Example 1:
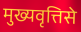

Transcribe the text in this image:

मुख्यवृत्तिसे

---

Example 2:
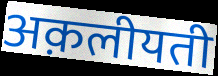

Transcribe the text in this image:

अक़लीयती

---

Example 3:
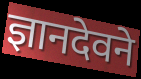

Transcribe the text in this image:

ज्ञानदेवने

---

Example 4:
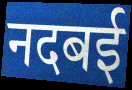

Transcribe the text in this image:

नदबई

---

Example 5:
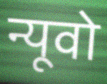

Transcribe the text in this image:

न्यूवो